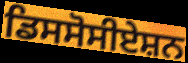
ਡਿਸਸੋਸੀਏਸ਼ਨ